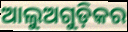
ଆଲୁଅଗୁଡ଼ିକର